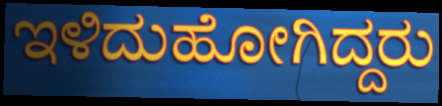
ಇಳಿದುಹೋಗಿದ್ದರು